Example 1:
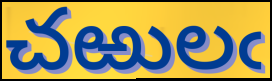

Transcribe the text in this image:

చఱులఁ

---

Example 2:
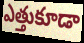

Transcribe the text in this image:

ఎత్తుకూడా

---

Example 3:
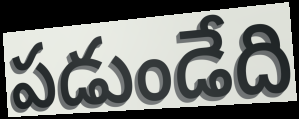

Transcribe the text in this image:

పడుండేది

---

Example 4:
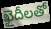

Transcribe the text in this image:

ఖైదీలతో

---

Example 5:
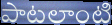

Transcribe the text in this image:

పాటలాంటి